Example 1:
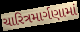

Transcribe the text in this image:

ચારિત્રમાર્ગણામાં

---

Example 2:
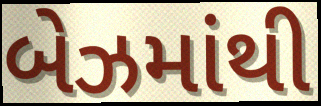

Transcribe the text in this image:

બેઝમાંથી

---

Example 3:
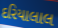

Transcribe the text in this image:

દરિયાલાલ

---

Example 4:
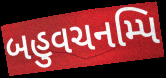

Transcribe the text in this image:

બહુવચનમ્પિ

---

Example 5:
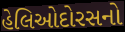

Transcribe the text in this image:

હેલિઓદોરસનો